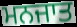
ਮਨਜਾਤ